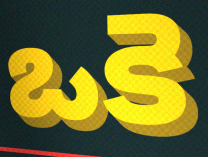
ఒకె